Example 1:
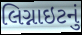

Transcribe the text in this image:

લિગ્નાઇટનું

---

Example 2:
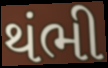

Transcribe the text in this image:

થંભી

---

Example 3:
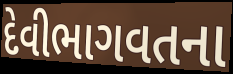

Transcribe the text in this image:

દેવીભાગવતના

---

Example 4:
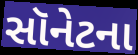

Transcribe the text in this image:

સૉનેટના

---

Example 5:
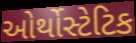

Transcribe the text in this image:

ઓર્થોસ્ટેટિક